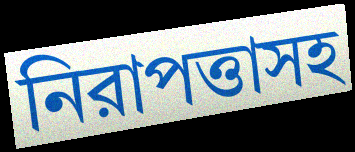
নিরাপত্তাসহ